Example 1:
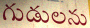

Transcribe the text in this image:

గుడులను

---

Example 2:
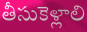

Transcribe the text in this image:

తీసుకెళ్లాలి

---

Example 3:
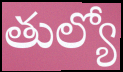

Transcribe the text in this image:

తుల్యో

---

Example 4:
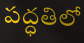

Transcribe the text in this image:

పద్ధతిలో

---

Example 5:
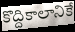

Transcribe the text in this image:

కొద్దికాలానికే